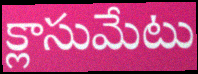
క్లాసుమేటు